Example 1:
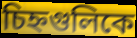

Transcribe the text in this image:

চিহ্নগুলিকে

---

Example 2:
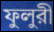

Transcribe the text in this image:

ফুলুরী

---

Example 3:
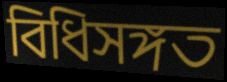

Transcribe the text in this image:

বিধিসঙ্গত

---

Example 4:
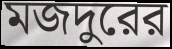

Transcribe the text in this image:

মজদুরের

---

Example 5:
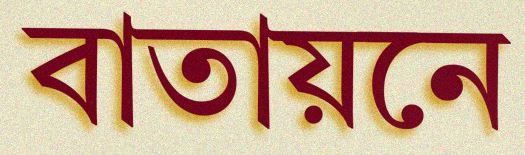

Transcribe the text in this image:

বাতায়নে